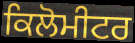
ਕਿਲੋਮੀਟਰ